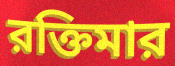
রক্তিমার